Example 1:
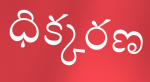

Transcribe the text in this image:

ధిక్కరణ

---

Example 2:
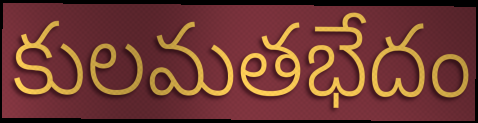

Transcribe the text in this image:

కులమతభేదం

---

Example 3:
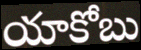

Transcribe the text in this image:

యాకోబు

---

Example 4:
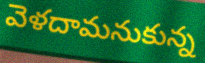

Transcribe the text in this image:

వెళదామనుకున్న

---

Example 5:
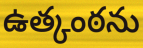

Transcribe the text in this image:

ఉత్కంఠను